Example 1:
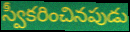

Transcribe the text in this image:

స్వీకరించినపుడు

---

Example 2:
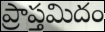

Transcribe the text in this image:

ప్రాప్తమిదం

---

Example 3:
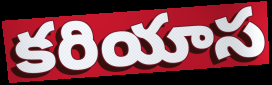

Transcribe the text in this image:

కరియాస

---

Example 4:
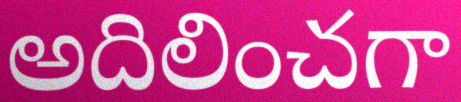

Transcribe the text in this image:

అదిలించగా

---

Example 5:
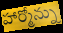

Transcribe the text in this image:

హార్మోన్ను